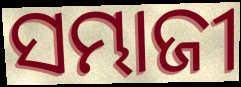
ସମ୍ଭାଜୀ